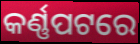
କର୍ଣ୍ଣପଟରେ